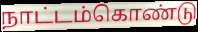
நாட்டம்கொண்டு